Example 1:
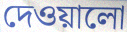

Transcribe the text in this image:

দেওয়ালো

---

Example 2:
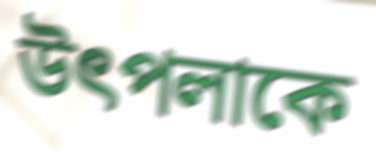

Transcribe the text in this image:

উৎপলাকে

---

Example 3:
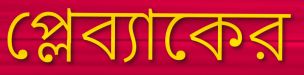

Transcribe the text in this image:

প্লেব্যাকের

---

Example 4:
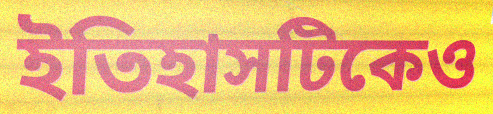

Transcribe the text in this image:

ইতিহাসটিকেও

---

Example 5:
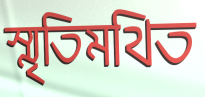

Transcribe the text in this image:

স্মৃতিমথিত